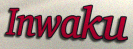
Inwaku